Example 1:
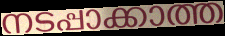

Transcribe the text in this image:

നടപ്പാക്കാത്ത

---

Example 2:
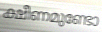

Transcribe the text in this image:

ക്ഷീണമുണ്ടോ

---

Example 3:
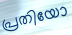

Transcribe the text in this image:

പ്രതിയോ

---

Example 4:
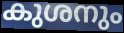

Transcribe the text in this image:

കുശനും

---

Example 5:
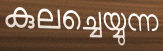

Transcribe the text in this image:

കുലച്ചെയ്യുന്ന